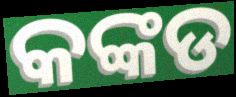
କଙ୍କଡ